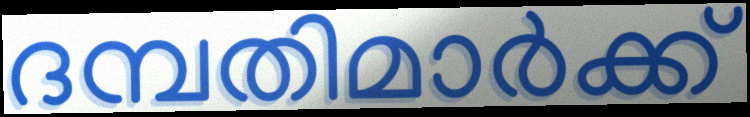
ദമ്പതിമാർക്ക്